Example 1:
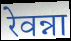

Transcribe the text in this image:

रेवन्ना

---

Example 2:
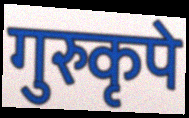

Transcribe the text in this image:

गुरुकृपे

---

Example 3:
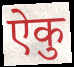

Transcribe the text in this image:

ऐकु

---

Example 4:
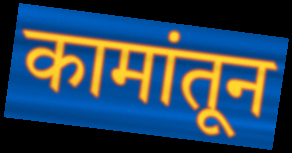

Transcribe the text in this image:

कामांतून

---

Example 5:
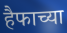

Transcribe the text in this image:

हैफाच्या